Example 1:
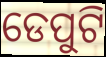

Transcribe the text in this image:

ଡେପୁଟି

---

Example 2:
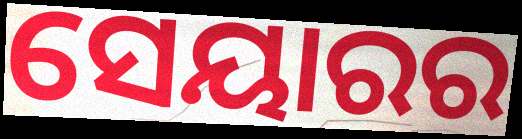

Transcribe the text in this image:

ସେୟାରର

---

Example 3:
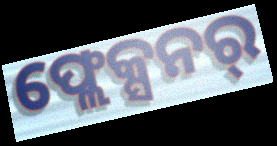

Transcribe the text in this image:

ଫ୍ଲେକ୍ସନର୍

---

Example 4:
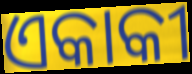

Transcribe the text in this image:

ଏକାକୀ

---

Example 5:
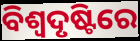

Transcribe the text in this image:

ବିଶ୍ଵଦୃଷ୍ଟିରେ